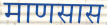
माणसास